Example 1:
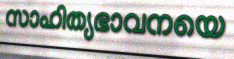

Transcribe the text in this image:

സാഹിത്യഭാവനയെ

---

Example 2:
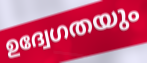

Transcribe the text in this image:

ഉദ്വേഗതയും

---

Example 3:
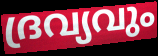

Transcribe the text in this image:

ദ്രവ്യവും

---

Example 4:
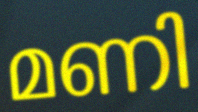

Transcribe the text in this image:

മണി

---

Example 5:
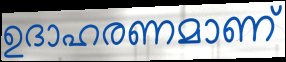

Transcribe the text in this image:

ഉദാഹരണമാണ്